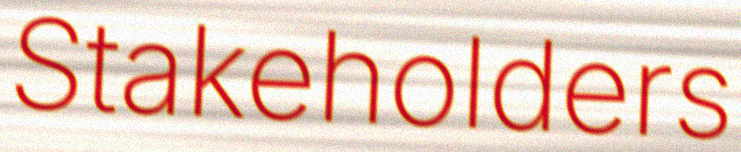
Stakeholders